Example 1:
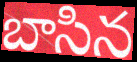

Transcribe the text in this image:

బాసిన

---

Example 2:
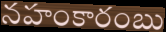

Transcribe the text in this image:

నహంకారంబు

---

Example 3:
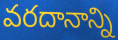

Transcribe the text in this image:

వరదానాన్ని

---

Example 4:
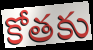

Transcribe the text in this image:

కోతకు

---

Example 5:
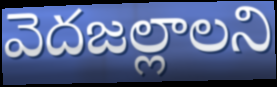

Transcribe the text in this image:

వెదజల్లాలని